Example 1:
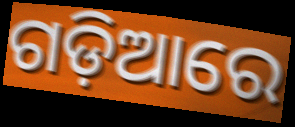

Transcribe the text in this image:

ଗଡ଼ିଆରେ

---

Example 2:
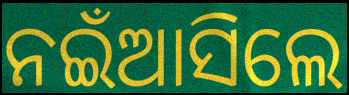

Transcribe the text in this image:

ନଇଁଆସିଲେ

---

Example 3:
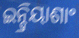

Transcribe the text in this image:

ଇନ୍ଦ୍ରିୟାଶାଂ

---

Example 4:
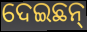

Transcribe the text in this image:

ଦେଇଛନ୍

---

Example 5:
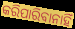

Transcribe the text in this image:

କରିପାରିବାନାହିଁ